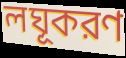
লঘূকরণ